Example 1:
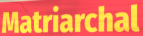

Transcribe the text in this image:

Matriarchal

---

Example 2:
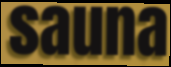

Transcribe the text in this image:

sauna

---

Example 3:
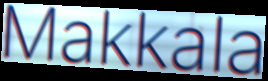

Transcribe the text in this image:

Makkala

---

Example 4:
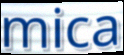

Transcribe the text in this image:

mica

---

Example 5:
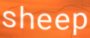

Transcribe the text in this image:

sheep